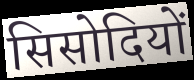
सिसोदियों